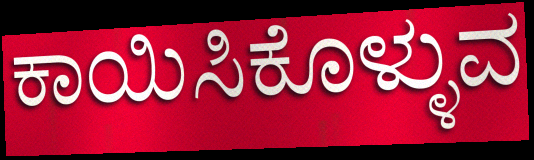
ಕಾಯಿಸಿಕೊಳ್ಳುವ